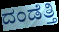
ದಂಡೆತ್ತಿ